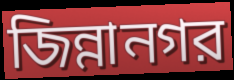
জিন্নানগর